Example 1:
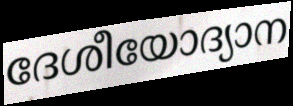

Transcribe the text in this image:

ദേശീയോദ്യാന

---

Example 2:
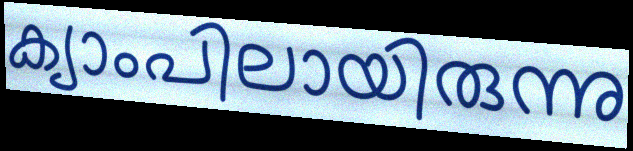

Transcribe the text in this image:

ക്യാംപിലായിരുന്നു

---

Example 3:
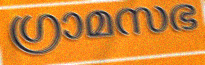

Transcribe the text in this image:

ഗ്രാമസഭ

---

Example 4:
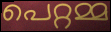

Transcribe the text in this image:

പെറ്റമ്മ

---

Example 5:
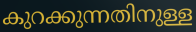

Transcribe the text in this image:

കുറക്കുന്നതിനുള്ള